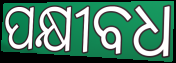
ପକ୍ଷୀବଧ